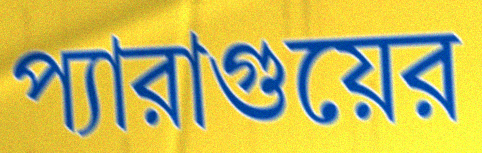
প্যারাগুয়ের